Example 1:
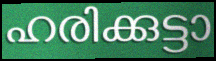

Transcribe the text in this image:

ഹരിക്കുട്ടാ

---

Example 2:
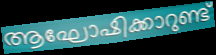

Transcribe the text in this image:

ആഘോഷിക്കാറുണ്ട്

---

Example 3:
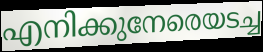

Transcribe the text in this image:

എനിക്കുനേരെയടച്ച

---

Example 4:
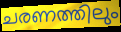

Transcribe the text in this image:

ചരണത്തിലും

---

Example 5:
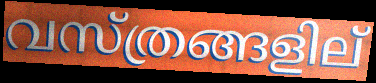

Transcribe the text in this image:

വസ്ത്രങ്ങളില്